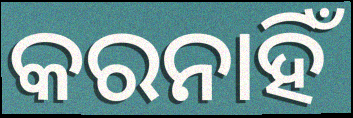
କରନାହିଁ